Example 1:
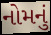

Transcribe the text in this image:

નોમનું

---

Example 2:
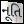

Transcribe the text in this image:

નૂતિ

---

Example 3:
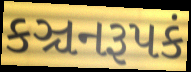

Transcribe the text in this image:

કઞ્ચનરૂપકં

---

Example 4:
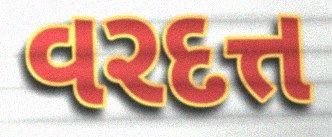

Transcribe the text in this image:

વરદત્ત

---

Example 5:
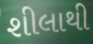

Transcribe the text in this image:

શીલાથી